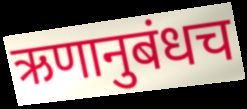
ऋणानुबंधच